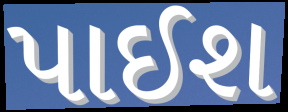
પાઈશ